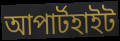
আপাৰ্টহাইট